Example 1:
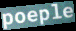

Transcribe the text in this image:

poeple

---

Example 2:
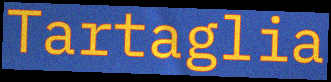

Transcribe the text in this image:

Tartaglia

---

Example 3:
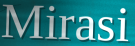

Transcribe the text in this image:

Mirasi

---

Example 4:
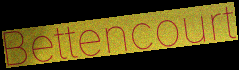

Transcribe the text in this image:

Bettencourt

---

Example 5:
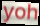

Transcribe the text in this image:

yoh